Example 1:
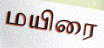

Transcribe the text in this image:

மயிரை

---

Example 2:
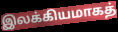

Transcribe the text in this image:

இலக்கியமாகத்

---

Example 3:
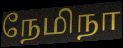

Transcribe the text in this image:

நேமிநா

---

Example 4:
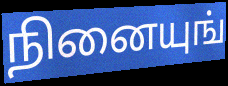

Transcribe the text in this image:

நினையுங்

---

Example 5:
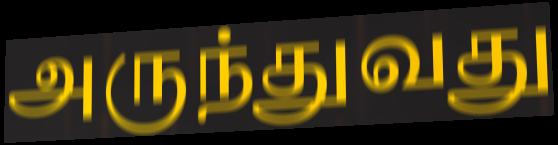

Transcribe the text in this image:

அருந்துவது